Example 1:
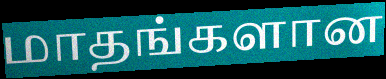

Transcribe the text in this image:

மாதங்களான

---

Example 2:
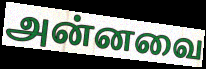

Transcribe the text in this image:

அன்னவை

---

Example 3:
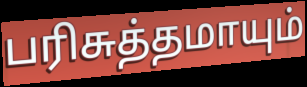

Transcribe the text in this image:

பரிசுத்தமாயும்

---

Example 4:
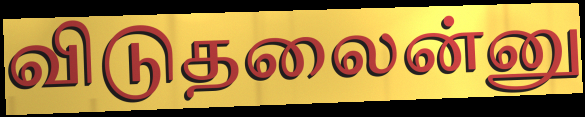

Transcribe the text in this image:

விடுதலைன்னு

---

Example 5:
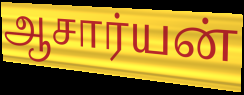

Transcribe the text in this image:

ஆசார்யன்